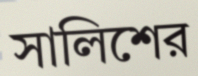
সালিশের